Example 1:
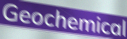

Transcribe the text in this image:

Geochemical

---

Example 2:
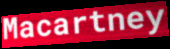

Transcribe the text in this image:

Macartney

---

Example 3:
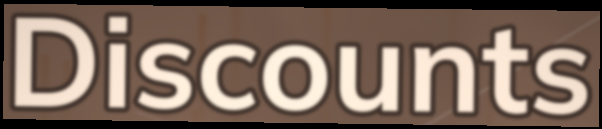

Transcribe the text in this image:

Discounts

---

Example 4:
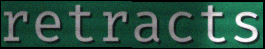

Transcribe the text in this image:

retracts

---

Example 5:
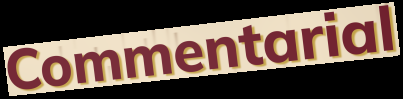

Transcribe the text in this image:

Commentarial